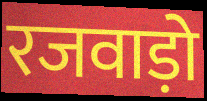
रजवाड़ो